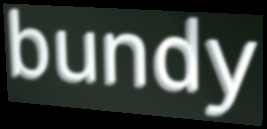
bundy